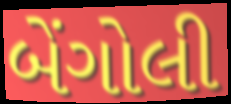
બેંગોલી